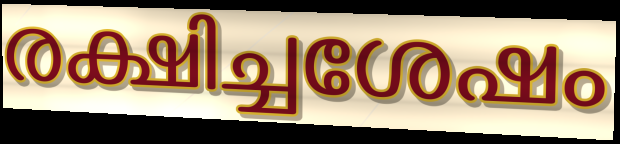
രക്ഷിച്ചശേഷം